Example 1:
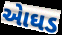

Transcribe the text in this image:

એાઘડ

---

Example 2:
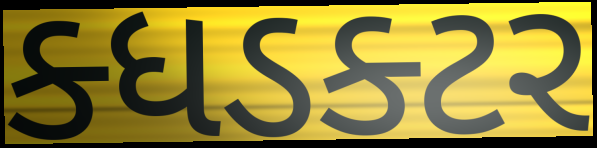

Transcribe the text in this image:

ક્ધડક્ટર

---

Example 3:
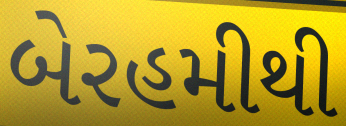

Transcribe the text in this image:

બેરહમીથી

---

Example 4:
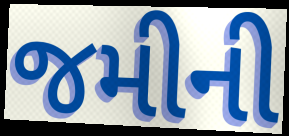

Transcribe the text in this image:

જમીની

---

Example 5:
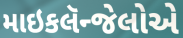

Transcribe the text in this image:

માઇકલૅન્જેલોએ